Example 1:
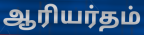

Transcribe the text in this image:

ஆரியர்தம்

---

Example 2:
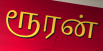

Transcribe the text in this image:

ரூரன்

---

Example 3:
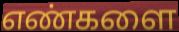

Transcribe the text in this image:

எண்களை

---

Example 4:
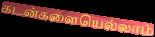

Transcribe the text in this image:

கடன்களையெல்லாம்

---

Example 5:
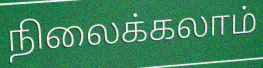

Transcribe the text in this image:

நிலைக்கலாம்